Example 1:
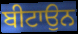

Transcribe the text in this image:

ਬੀਟਾਉਨ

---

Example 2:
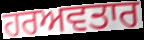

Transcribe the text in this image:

ਹਰਅਵਤਾਰ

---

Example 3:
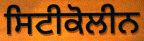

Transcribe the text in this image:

ਸਿਟੀਕੋਲੀਨ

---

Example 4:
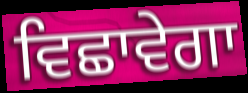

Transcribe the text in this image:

ਵਿਛਾਵੇਗਾ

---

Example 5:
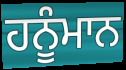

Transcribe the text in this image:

ਹਨੂੰਮਾਨ